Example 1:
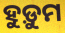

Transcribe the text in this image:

ହୁଡ଼ୁମ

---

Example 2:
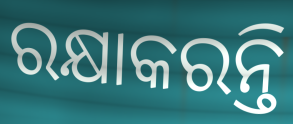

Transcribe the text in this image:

ରକ୍ଷାକରନ୍ତି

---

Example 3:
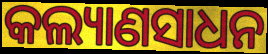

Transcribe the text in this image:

କଲ୍ୟାଣସାଧନ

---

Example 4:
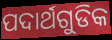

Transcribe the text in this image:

ପଦାର୍ଥଗୁଡିକ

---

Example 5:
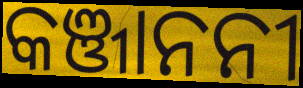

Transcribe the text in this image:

କଞ୍ଜାନନୀ